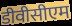
डीवीसीएम